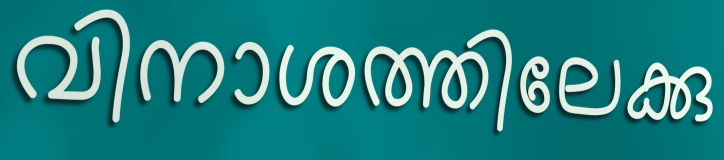
വിനാശത്തിലേക്കു